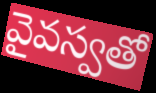
వైవస్వతో